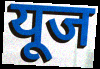
यूज